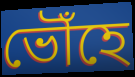
ভৌঁহে